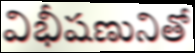
విభీషణునితో